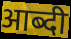
आब्दी